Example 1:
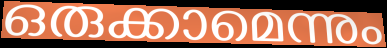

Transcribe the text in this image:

ഒരുക്കാമെന്നും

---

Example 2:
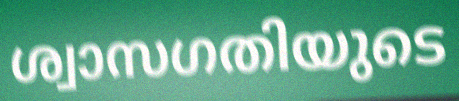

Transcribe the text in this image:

ശ്വാസഗതിയുടെ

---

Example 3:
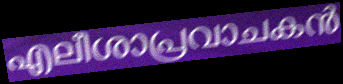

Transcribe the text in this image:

എലീശാപ്രവാചകൻ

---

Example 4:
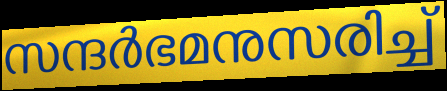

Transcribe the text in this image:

സന്ദർഭമനുസരിച്ച്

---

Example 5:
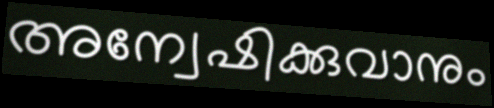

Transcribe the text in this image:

അന്വേഷിക്കുവാനും